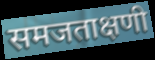
समजताक्षणी